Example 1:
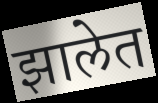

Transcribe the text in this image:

झालेत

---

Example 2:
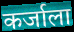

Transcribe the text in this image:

कर्जाला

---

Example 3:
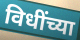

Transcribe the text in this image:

विधींच्या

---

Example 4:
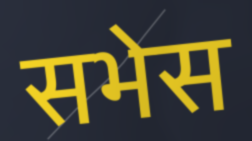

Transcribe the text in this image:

सभेस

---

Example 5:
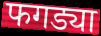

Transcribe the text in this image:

फगड्या